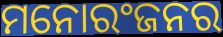
ମନୋରଂଜନର